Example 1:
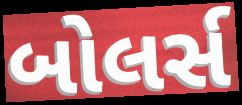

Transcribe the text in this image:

બોલર્સ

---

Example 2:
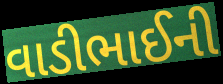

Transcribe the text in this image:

વાડીભાઈની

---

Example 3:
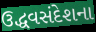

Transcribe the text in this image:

ઉદ્ધવસંદેશના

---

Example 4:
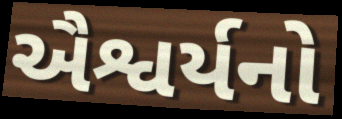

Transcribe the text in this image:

ઐશ્વર્યનો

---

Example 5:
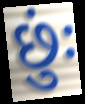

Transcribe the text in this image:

છુંઃ